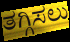
ತಗ್ಗಿಸಲು